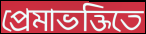
প্রেমাভক্তিতে